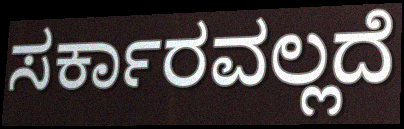
ಸರ್ಕಾರವಲ್ಲದೆ